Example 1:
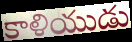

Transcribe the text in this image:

కాళియుడు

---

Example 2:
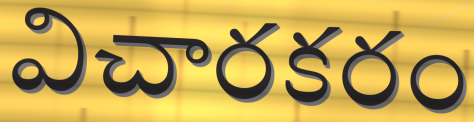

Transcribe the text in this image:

విచారకరం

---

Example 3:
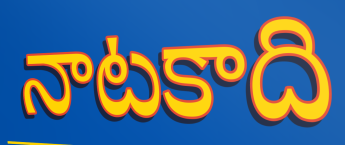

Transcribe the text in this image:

నాటకాది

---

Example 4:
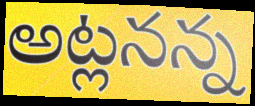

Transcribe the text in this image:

అట్లనన్న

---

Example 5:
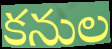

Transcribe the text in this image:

కనుల